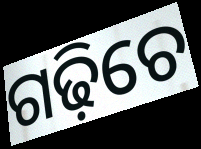
ଗଢ଼ିଚେ